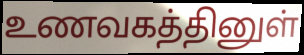
உணவகத்தினுள்